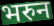
भरुन